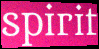
spirit